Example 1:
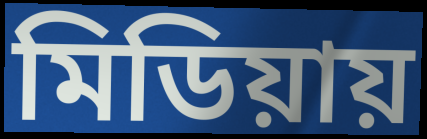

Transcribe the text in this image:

মিডিয়ায়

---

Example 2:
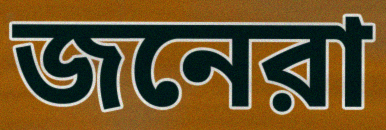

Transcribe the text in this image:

জনেরা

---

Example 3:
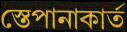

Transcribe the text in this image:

স্তেপানাকার্ত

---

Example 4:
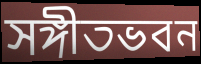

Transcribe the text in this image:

সঙ্গীতভবন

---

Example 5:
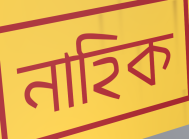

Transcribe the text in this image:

নাহিক